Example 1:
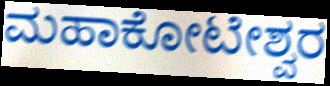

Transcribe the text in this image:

ಮಹಾಕೋಟೇಶ್ವರ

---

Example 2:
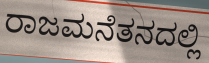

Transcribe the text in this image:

ರಾಜಮನೆತನದಲ್ಲಿ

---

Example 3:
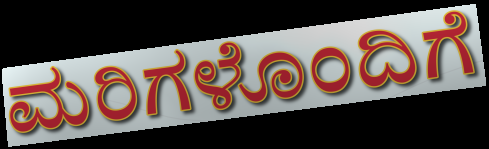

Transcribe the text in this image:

ಮರಿಗಳೊಂದಿಗೆ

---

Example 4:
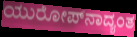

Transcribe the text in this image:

ಯುರೋಪ್‌ನಾದ್ಯಂತ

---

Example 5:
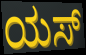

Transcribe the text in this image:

ಯಸ್